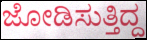
ಜೋಡಿಸುತ್ತಿದ್ದ